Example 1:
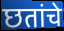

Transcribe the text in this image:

छतांचे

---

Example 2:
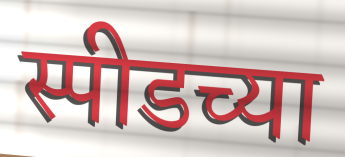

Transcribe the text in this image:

स्पीडच्या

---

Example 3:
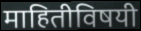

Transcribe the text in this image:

माहितीविषयी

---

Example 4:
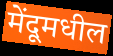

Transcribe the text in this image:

मेंदूमधील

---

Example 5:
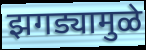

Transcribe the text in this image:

झगड्यामुळे